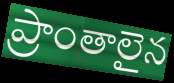
ప్రాంతాలైన